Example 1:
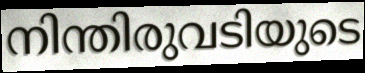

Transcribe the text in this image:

നിന്തിരുവടിയുടെ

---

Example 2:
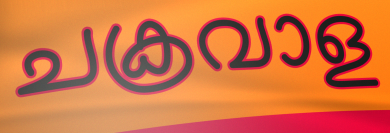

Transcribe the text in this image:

ചക്രവാള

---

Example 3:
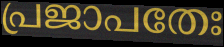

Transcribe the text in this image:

പ്രജാപതേഃ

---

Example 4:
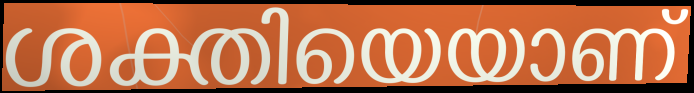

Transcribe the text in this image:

ശക്തിയെയാണ്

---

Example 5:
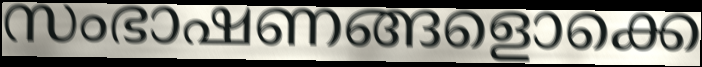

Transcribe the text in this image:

സംഭാഷണങ്ങളൊക്കെ